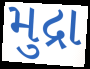
મુદ્રા